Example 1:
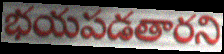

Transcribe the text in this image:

భయపడతారని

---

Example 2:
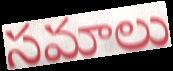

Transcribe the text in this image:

సమాలు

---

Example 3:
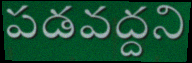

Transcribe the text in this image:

పడవద్దని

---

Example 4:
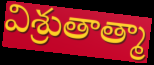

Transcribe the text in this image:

విశ్రుతాత్మా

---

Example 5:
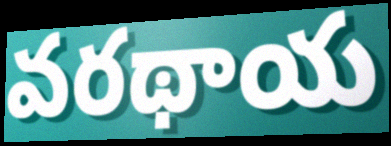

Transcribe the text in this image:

వరథాయ